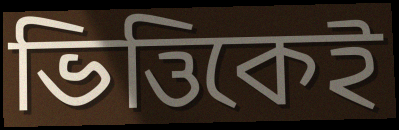
ভিত্তিকেই